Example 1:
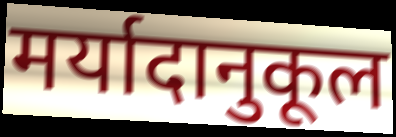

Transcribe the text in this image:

मर्यादानुकूल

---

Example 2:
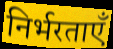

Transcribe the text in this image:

निर्भरताएँ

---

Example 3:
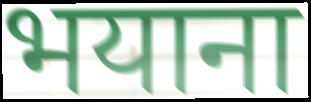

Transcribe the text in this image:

भयाना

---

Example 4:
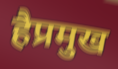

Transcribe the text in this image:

हैप्रमुख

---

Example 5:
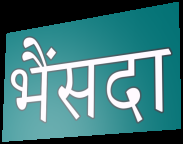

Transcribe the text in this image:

भैंसदा